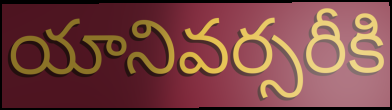
యానివర్సరీకి